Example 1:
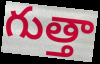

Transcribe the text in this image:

గుత్తా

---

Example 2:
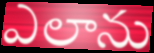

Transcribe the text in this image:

ఎలాను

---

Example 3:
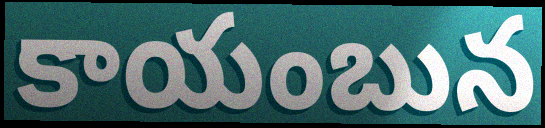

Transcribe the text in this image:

కాయంబున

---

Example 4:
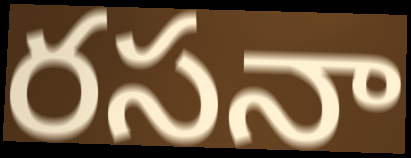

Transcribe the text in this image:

రసనా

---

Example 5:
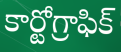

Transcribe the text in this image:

కార్టోగ్రాఫిక్